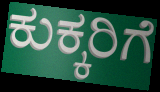
ಕುಕ್ಕರಿಗೆ